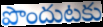
పొందుటకు